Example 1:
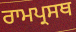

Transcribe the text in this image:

ਰਾਮਪ੍ਰਸਥ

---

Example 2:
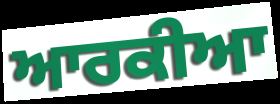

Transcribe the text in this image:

ਆਰਕੀਆ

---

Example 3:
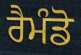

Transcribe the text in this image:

ਰੈਮੰਡੋ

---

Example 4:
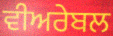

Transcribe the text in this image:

ਵੀਅਰੇਬਲ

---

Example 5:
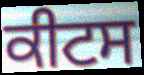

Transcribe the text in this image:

ਕੀਟਸ